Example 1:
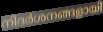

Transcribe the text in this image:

നിദർശനങ്ങളായി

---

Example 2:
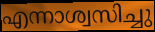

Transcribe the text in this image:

എന്നാശ്വസിച്ചു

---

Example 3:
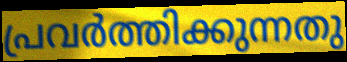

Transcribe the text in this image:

പ്രവർത്തിക്കുന്നതു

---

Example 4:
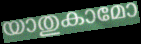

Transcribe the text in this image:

യാതുകാമോ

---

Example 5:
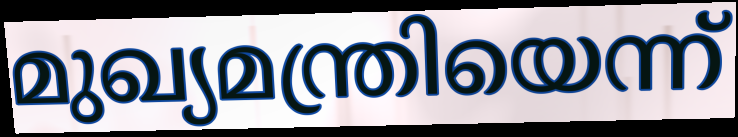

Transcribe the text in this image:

മുഖ്യമന്ത്രിയെന്ന്